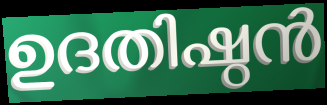
ഉദതിഷ്ഠൻ